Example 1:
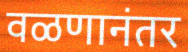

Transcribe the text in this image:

वळणानंतर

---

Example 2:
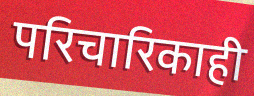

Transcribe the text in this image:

परिचारिकाही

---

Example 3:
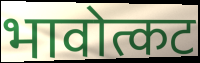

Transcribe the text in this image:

भावोत्कट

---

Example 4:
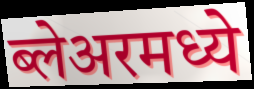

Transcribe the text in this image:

ब्लेअरमध्ये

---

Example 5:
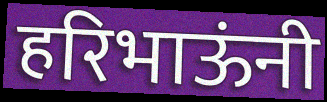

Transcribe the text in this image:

हरिभाऊंनी